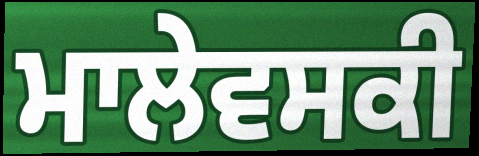
ਮਾਲੇਵਸਕੀ